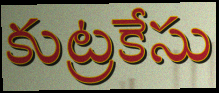
కుట్రకేసు